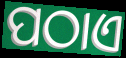
ପଠାଏ